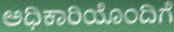
ಅಧಿಕಾರಿಯೊಂದಿಗೆ